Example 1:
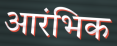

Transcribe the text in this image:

आरंभिक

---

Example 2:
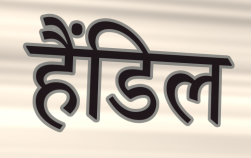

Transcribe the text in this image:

हैंडिल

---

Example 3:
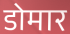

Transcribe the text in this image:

डोमार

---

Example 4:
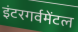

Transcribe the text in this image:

इंटरगर्वमेंटल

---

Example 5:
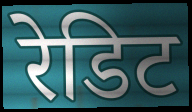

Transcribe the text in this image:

रेडिट